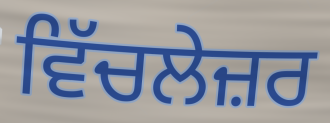
ਵਿੱਚਲੇਜ਼ਰ